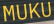
MUKU